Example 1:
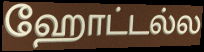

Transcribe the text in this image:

ஹோட்டல்ல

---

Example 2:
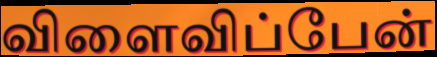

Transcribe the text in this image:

விளைவிப்பேன்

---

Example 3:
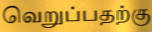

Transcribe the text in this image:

வெறுப்பதற்கு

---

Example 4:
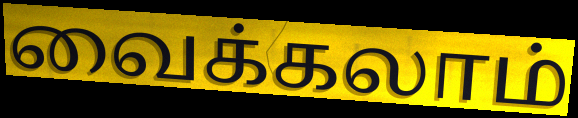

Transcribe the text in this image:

வைக்கலாம்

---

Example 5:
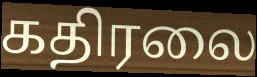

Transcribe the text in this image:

கதிரலை